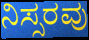
ನಿಸ್ಸರವು